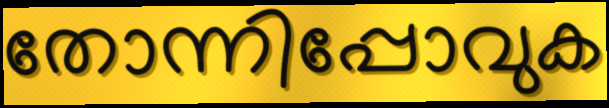
തോന്നിപ്പോവുക